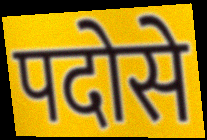
पदोसे